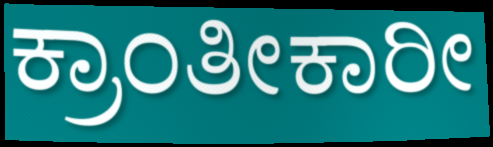
ಕ್ರಾಂತೀಕಾರೀ